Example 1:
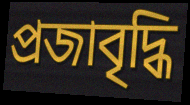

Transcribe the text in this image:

প্রজাবৃদ্ধি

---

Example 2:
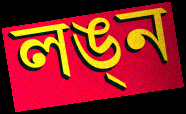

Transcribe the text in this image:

লঙ্ন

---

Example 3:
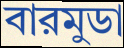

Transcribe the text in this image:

বারমুডা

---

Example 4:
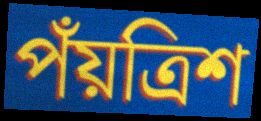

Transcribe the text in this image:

পঁয়ত্রিশ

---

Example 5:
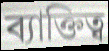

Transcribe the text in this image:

ব্যাক্তিত্ব